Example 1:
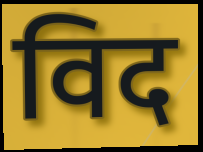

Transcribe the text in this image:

विद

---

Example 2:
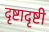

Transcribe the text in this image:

दृष्टादृष्टी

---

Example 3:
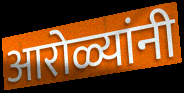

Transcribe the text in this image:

आरोळ्यांनी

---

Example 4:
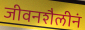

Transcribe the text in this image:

जीवनशैलीनं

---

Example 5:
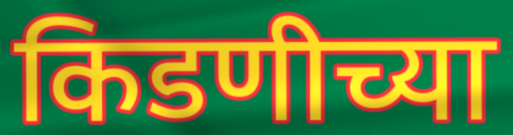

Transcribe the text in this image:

किडणीच्या